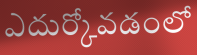
ఎదుర్కోవడంలో